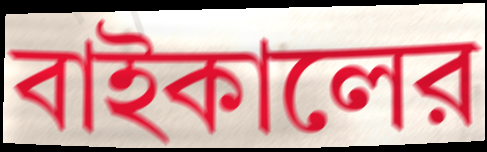
বাইকালের